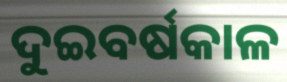
ଦୁଇବର୍ଷକାଳ